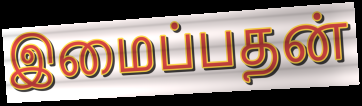
இமைப்பதன்